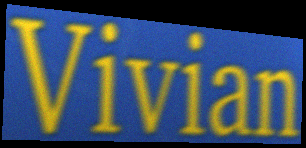
Vivian